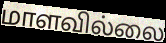
மாளவில்லை